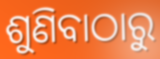
ଶୁଣିବାଠାରୁ